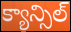
క్యాన్సిల్